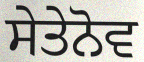
ਸੇਤੇਨੋਵ